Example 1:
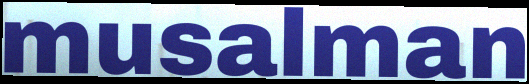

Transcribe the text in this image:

musalman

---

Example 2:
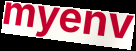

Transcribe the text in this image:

myenv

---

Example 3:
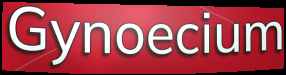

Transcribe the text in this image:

Gynoecium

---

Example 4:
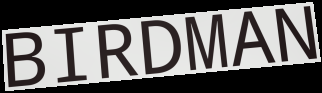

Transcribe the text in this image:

BIRDMAN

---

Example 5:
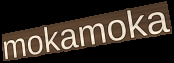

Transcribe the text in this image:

mokamoka